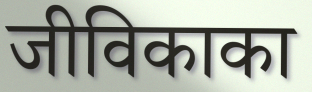
जीविकाका